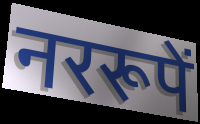
नररूपें